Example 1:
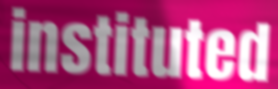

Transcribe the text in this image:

instituted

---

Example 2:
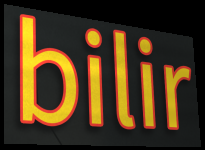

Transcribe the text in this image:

bilir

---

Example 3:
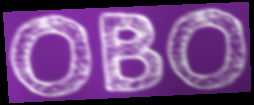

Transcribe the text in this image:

OBO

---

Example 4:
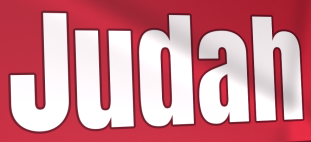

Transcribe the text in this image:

Judah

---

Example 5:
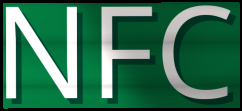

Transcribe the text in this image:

NFC